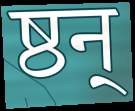
ष्ठन्